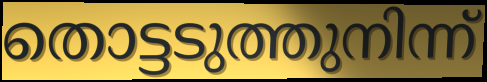
തൊട്ടടുത്തുനിന്ന്